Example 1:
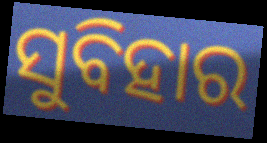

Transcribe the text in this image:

ସୁବିହାର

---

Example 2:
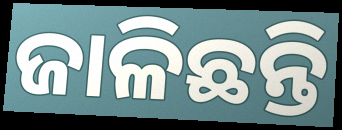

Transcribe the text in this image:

ଜାଳିଛନ୍ତି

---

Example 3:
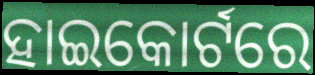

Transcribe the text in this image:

ହାଇକୋର୍ଟରେ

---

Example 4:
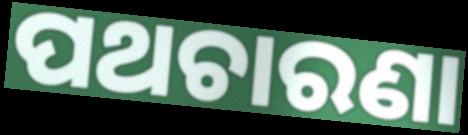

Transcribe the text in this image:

ପଥଚାରଣା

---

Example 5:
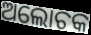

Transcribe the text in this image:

ଅଲୋଚକ